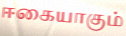
ஈகையாகும்